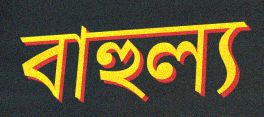
বাহুল্য